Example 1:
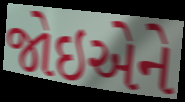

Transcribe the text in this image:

જોઇએને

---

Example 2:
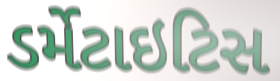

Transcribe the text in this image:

ડર્મેટાઇટિસ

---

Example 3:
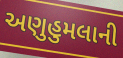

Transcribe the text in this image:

અણુહુમલાની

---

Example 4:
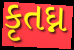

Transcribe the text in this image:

કૃતઘ્ન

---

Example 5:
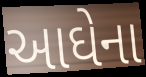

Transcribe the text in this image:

આઘેના